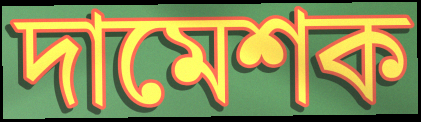
দামেশক